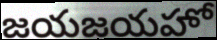
జయజయహో